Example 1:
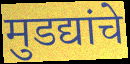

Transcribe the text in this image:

मुडद्यांचे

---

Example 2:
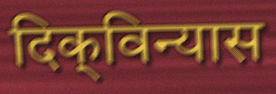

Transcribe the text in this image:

दिक्‌विन्यास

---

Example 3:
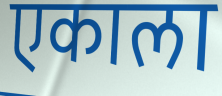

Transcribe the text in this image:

एकाला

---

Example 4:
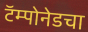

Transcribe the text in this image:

टॅम्पोनेडचा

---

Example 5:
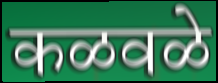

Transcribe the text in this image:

कळवळे